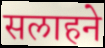
सलाहने